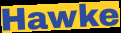
Hawke